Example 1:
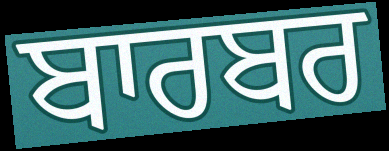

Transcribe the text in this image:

ਬਾਰਬਰ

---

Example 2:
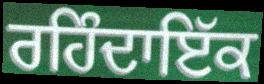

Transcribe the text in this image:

ਰਹਿੰਦਾਇੱਕ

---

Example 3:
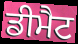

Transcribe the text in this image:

ਡੀਮੈਟ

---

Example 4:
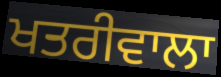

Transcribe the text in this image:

ਖਤਰੀਵਾਲਾ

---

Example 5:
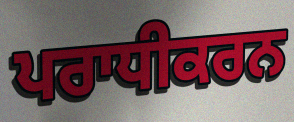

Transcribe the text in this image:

ਪਰਾਧੀਕਰਨ